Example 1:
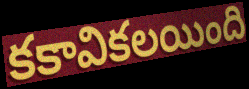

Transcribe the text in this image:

కకావికలయింది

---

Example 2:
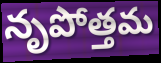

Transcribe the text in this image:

నృపోత్తమ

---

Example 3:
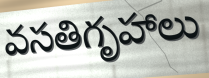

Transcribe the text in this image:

వసతిగృహాలు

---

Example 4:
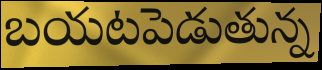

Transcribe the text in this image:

బయటపెడుతున్న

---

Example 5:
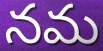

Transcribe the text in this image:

నమ